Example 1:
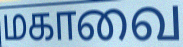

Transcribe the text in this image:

மகாவை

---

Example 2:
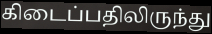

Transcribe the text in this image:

கிடைப்பதிலிருந்து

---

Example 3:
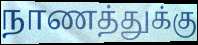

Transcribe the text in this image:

நாணத்துக்கு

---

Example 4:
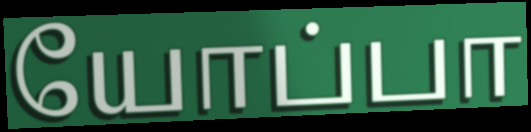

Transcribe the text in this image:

யோப்பா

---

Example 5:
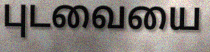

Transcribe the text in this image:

புடவையை